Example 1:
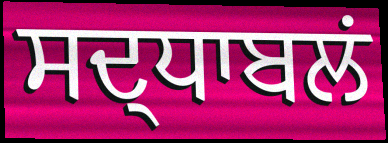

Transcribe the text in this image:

ਸਦ੍ਧਾਬਲਂ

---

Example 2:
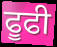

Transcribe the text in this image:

ਫੂਫੀ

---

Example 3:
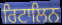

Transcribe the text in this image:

ਰਿਟਾਲਿਨ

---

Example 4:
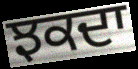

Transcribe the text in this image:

ਝਕਦਾ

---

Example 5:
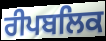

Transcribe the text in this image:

ਰੀਪਬਲਿਕ